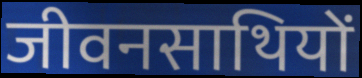
जीवनसाथियों